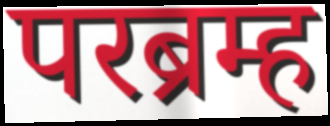
परब्रम्ह